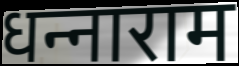
धन्नाराम